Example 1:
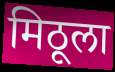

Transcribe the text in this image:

मिठूला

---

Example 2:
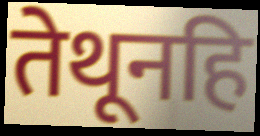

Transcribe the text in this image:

तेथूनहि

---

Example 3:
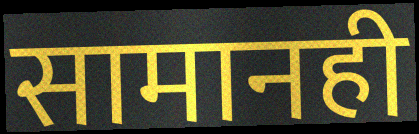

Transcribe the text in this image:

सामानही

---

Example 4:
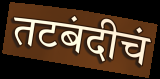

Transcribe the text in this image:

तटबंदीचं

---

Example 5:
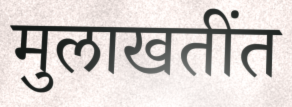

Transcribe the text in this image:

मुलाखतींत